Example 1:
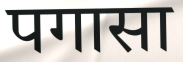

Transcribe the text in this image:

पगासा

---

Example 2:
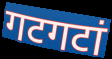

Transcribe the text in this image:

गटगटां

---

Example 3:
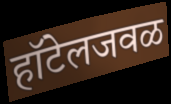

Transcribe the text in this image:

हॉटेलजवळ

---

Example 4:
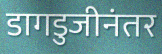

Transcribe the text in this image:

डागडुजीनंतर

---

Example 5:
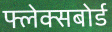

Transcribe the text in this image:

फ्लेक्सबोर्ड